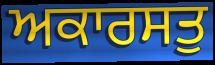
ਅਕਾਰਸਤੁ